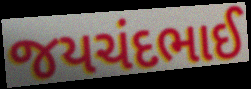
જયચંદભાઈ